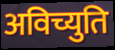
अविच्युति